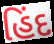
હિંદ